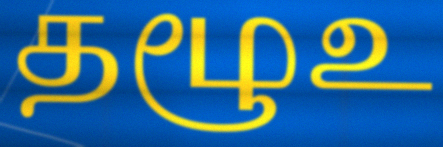
தழூஉ